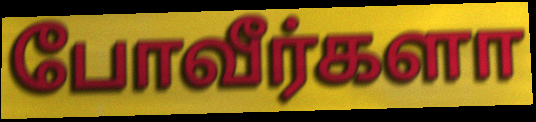
போவீர்களா